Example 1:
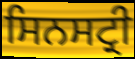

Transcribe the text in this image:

ਸਿਨਸਟ੍ਰੀ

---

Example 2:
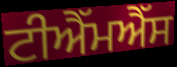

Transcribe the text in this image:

ਟੀਐੱਮਐੱਸ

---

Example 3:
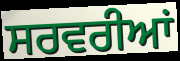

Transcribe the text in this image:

ਸਰਵਰੀਆਂ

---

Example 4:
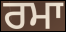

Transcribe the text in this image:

ਰਮਾ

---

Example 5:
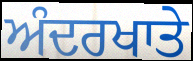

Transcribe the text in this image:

ਅੰਦਰਖਾਤੇ